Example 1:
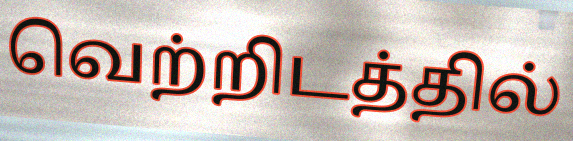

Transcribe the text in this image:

வெற்றிடத்தில்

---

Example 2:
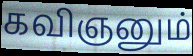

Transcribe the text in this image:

கவிஞனும்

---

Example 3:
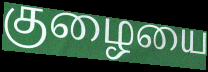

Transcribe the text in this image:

குழையை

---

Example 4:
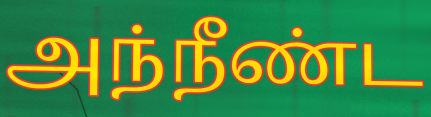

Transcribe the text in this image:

அந்நீண்ட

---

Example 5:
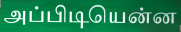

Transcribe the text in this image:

அப்பிடியென்ன